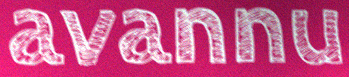
avannu